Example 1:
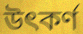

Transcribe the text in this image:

উৎকর্ণ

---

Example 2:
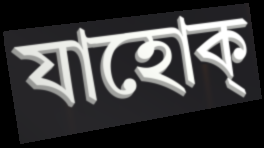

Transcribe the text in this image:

যাহোক্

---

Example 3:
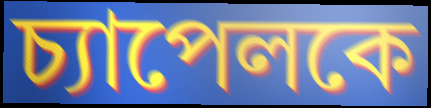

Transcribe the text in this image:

চ্যাপেলকে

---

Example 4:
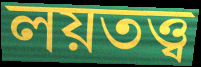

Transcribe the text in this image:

লয়তত্ত্ব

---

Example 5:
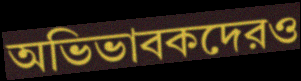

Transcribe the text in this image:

অভিভাবকদেরও